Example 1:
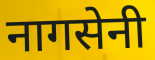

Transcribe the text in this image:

नागसेनी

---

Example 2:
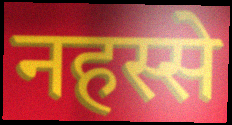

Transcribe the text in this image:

नहस्से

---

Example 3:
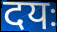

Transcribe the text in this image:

दयः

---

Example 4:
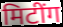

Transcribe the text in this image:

मिटींग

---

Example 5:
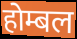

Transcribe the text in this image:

होम्बल